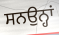
ਸਨਉਨ੍ਹਾਂ